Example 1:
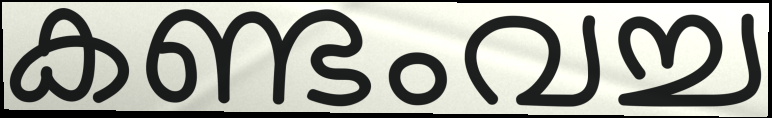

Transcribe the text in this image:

കണ്ടംവച്ച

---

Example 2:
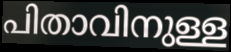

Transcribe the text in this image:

പിതാവിനുള്ള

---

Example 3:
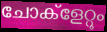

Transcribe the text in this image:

ചോക്ളേറ്റും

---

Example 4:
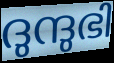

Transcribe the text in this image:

ദുന്ദുഭി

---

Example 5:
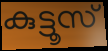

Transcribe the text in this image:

കുട്ടൂസ്